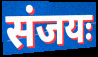
संजयः